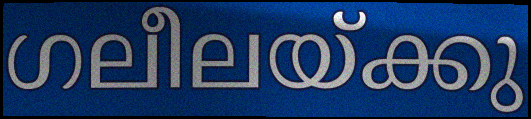
ഗലീലയ്ക്കു